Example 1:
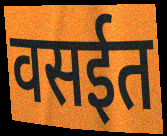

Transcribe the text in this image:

वसईत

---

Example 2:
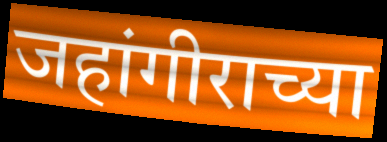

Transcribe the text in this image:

जहांगीराच्या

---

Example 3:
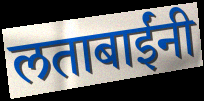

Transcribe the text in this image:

लताबाईंनी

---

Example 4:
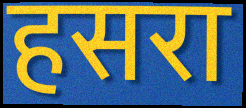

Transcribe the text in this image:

हसरा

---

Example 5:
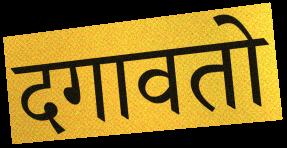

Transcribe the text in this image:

दगावतो